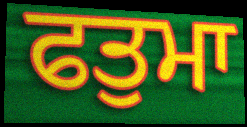
ਫਤੁਮਾ